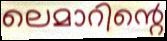
ലെമാറിന്റെ